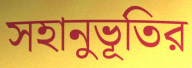
সহানুভূতির